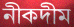
নীকদীম